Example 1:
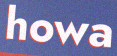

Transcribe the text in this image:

howa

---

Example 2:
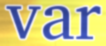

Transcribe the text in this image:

var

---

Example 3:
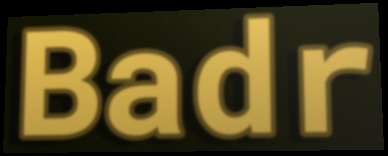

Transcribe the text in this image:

Badr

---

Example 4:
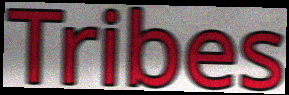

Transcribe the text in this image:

Tribes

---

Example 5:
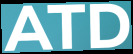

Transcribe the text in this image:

ATD